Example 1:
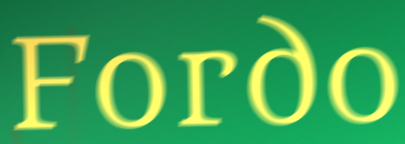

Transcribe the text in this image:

Fordo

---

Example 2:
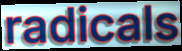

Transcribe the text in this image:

radicals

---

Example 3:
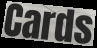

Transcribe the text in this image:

Cards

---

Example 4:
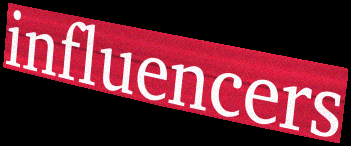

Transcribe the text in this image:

influencers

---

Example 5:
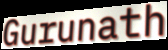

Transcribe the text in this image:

Gurunath